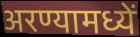
अरण्यामध्यें